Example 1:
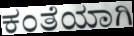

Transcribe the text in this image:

ಕಂತೆಯಾಗಿ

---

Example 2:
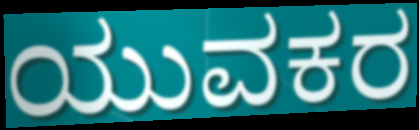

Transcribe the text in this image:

ಯುವಕರ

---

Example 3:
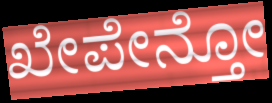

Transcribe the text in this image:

ಖೇಪೇನ್ತೋ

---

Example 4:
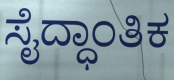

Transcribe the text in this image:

ಸೈದ್ಧಾಂತಿಕ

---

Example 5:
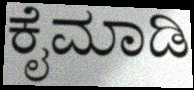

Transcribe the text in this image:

ಕೈಮಾಡಿ